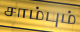
சாம்பும்